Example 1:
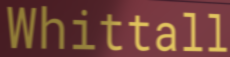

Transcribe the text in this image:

Whittall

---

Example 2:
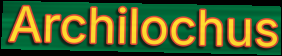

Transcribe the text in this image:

Archilochus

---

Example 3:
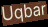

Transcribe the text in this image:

Uqbar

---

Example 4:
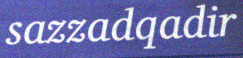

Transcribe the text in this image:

sazzadqadir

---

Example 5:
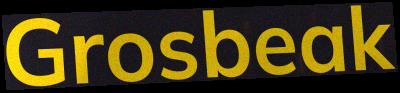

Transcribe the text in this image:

Grosbeak